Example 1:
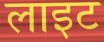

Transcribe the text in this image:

लाइट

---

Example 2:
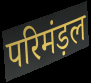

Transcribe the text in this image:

परिमंड़ल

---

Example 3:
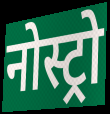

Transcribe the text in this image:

नोस्ट्रो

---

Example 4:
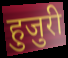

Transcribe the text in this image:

हुजुरी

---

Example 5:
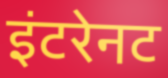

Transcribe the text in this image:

इंटरेनट